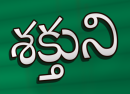
శక్తుని